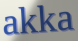
akka